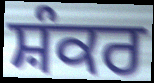
ਸ਼ੰਕਰ